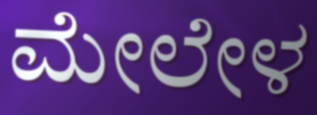
ಮೇಲೇಳ